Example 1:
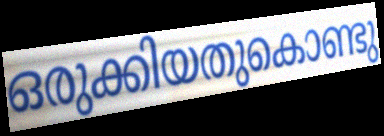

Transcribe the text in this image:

ഒരുക്കിയതുകൊണ്ടു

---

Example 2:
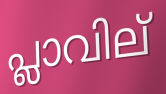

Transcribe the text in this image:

പ്ലാവില്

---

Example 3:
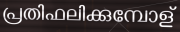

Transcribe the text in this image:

പ്രതിഫലിക്കുമ്പോള്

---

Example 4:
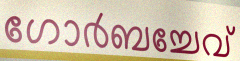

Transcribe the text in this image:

ഗോർബച്ചേവ്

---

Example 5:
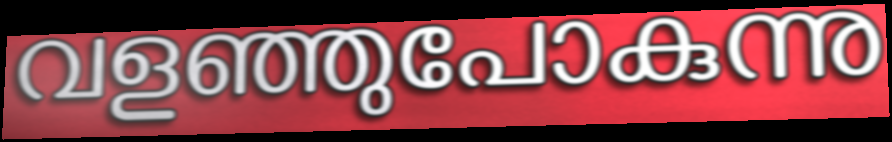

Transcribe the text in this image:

വളഞ്ഞുപോകുന്നു